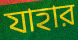
যাহার